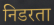
निडरता